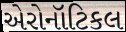
એરોનૉટિકલ